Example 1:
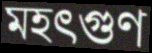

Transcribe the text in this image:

মহৎগুণ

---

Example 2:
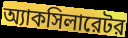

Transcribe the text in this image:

অ্যাকসিলারেটর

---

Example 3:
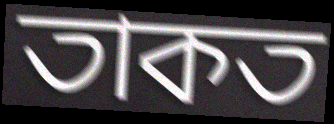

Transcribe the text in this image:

তাকত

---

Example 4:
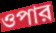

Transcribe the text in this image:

ওপার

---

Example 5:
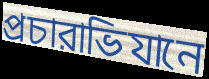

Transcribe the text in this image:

প্রচারাভিযানে